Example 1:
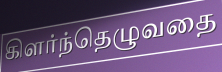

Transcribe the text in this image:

கிளர்ந்தெழுவதை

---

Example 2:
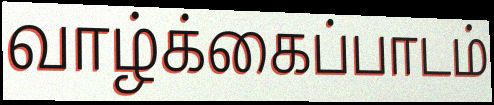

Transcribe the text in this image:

வாழ்க்கைப்பாடம்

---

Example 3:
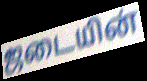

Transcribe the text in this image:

ஜடையின்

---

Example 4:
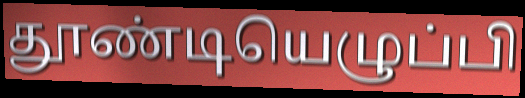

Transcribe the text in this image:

தூண்டியெழுப்பி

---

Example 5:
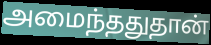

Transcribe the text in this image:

அமைந்ததுதான்